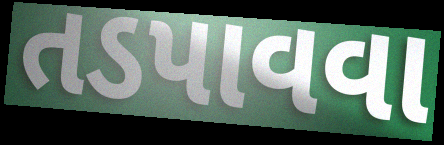
તડપાવવા